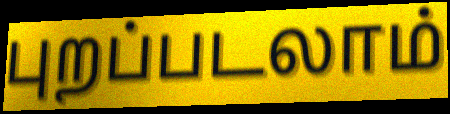
புறப்படலாம்